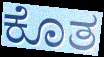
ಕೊತ